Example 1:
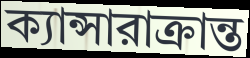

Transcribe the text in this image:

ক্যান্সারাক্রান্ত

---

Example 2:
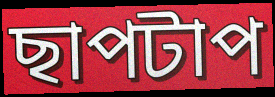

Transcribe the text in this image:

ছাপটাপ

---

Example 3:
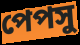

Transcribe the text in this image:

পেপসু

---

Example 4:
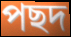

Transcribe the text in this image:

পছদ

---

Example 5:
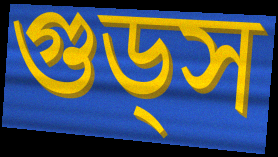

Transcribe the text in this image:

গুড্স